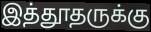
இத்தூதருக்கு